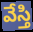
వేస్తి